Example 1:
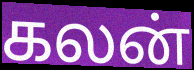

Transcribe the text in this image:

கலன்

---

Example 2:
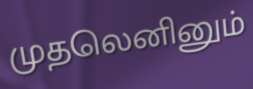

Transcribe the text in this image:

முதலெனினும்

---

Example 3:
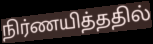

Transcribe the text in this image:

நிர்ணயித்ததில்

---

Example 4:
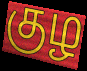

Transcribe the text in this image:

குழ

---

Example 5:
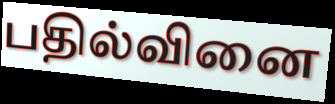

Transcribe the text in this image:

பதில்வினை